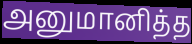
அனுமானித்த